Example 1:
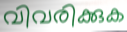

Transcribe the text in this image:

വിവരിക്കുക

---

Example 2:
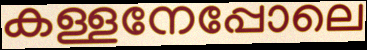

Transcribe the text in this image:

കള്ളനേപ്പോലെ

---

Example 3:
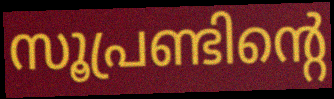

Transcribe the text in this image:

സൂപ്രണ്ടിന്റെ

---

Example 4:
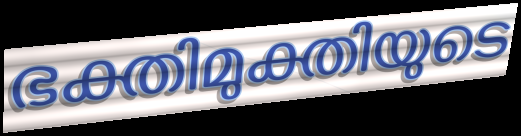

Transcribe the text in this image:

ഭക്തിമുക്തിയുടെ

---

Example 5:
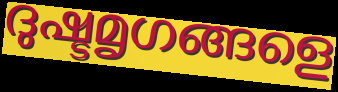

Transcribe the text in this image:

ദുഷ്ടമൃഗങ്ങളെ